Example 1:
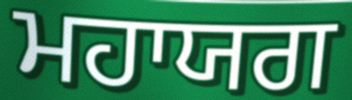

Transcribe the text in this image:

ਮਹਾਯਗ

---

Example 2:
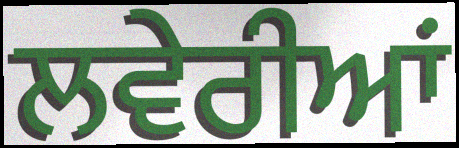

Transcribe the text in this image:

ਲਵੇਰੀਆਂ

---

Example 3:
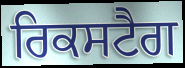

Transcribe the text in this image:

ਰਿਕਸਟੈਗ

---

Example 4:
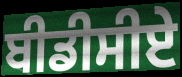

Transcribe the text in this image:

ਬੀਡੀਸੀਏ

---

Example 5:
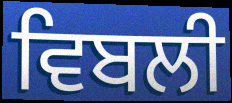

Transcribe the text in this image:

ਵਿਬਲੀ